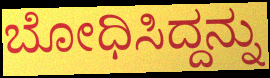
ಬೋಧಿಸಿದ್ದನ್ನು